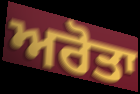
ਅਰੋਤਾ